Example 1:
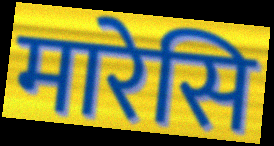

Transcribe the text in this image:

मारेसि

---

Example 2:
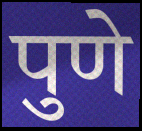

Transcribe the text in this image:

पुणे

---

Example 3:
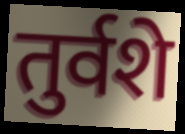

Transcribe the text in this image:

तुर्वशे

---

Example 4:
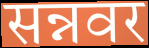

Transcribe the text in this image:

सन्नवर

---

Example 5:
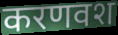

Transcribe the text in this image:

करणवश